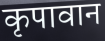
कृपावान